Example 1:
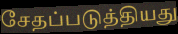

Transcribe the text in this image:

சேதப்படுத்தியது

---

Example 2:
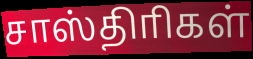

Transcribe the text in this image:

சாஸ்திரிகள்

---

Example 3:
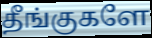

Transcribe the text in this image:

தீங்குகளே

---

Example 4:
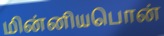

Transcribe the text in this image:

மின்னியபொன்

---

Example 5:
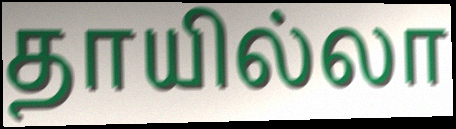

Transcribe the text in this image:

தாயில்லா